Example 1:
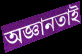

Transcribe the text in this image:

অজ্ঞানতাই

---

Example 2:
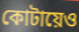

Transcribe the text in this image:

কোটায়েও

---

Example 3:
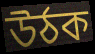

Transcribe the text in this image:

উঠক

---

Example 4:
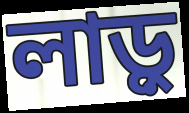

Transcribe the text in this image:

লাড়ু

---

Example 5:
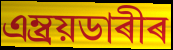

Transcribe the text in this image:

এম্ব্ৰয়ডাৰীৰ